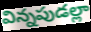
విన్నపుడల్లా